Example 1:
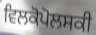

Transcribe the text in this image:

ਵਿਲਕੋਪੋਲਸਕੀ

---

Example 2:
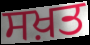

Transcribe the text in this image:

ਸਖ਼ਤ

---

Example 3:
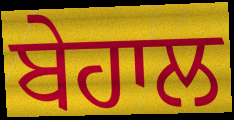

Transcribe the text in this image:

ਬੇਹਾਲ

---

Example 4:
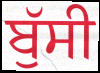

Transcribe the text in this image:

ਬੁੱਸੀ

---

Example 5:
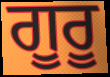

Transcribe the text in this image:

ਗੂਰੂ